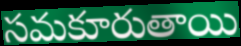
సమకూరుతాయి